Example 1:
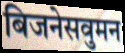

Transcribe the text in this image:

बिजनेसवुमन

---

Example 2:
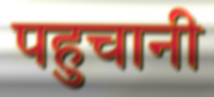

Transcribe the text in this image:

पहुचानी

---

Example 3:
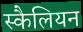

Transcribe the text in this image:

स्कैलियन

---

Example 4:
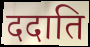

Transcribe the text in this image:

ददाति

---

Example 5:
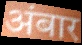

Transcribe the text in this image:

अंबार